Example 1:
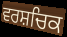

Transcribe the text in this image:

ਵਰਸ਼ਚਿਕ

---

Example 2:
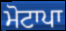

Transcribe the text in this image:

ਮੋਟਾਪਾ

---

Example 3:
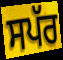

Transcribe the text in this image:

ਸਪੱਰ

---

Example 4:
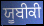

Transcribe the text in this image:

ਯੂਬੀਕੀ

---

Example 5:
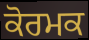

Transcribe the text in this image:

ਕੋਰਮਕ